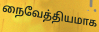
நைவேத்தியமாக